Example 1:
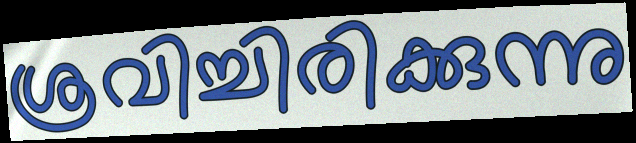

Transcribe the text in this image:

ശ്രവിച്ചിരിക്കുന്നു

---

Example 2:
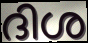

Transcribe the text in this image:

ദിശ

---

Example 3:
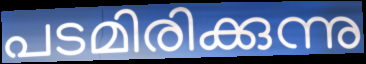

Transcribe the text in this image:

പടമിരിക്കുന്നു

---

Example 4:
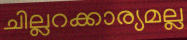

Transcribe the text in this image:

ചില്ലറക്കാര്യമല്ല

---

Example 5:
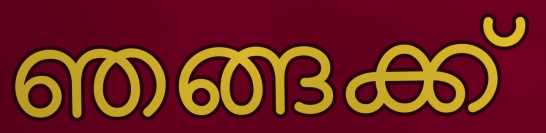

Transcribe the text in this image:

ഞങ്ങക്ക്